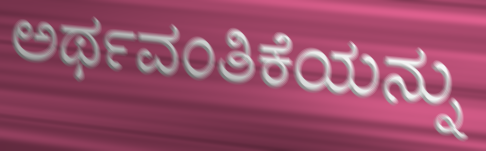
ಅರ್ಥವಂತಿಕೆಯನ್ನು